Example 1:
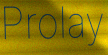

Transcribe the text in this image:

Prolay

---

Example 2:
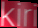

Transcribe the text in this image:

kiri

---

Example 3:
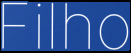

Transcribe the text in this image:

Filho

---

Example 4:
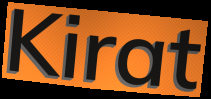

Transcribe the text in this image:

Kirat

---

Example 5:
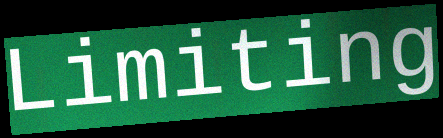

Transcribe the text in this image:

Limiting